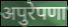
अपुरेपणा